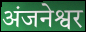
अंजनेश्वर